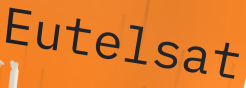
Eutelsat